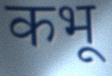
कभू